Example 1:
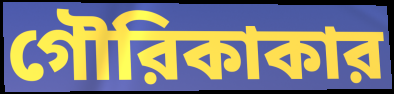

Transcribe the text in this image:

গৌরিকাকার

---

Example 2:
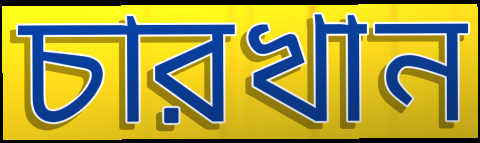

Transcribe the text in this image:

চারখান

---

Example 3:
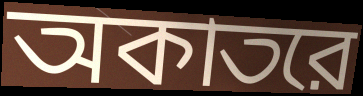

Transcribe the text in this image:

অকাতরে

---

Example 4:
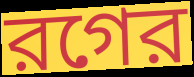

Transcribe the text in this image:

রগের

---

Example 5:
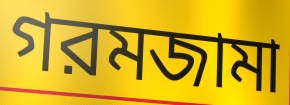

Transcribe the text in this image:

গরমজামা